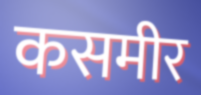
कसमीर